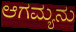
ಆಗಮ್ಯನು